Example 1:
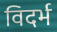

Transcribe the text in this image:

विदर्भ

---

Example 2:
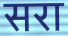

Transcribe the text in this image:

सरा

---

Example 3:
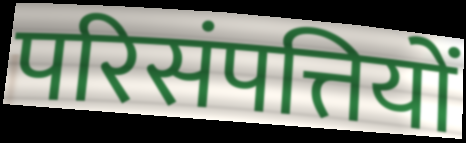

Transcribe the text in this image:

परिसंपत्तियों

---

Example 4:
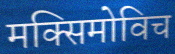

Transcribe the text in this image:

मक्सिमोविच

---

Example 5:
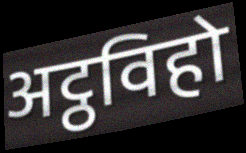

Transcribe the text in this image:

अट्ठविहो